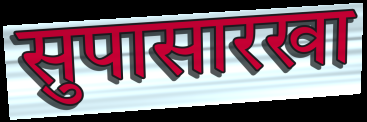
सुपासारखा